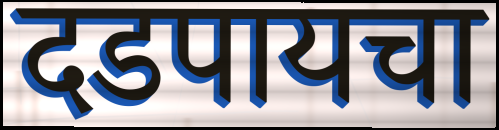
दडपायचा